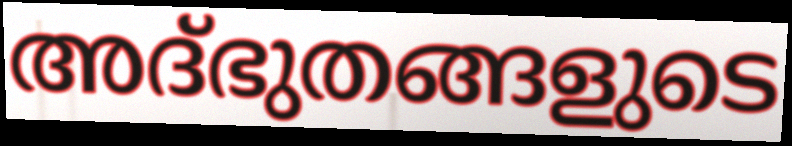
അദ്ഭുതങ്ങളുടെ